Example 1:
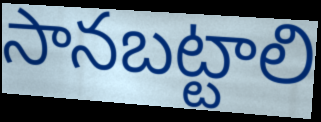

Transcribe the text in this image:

సానబట్టాలి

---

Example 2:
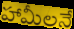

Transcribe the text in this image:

హామీలనే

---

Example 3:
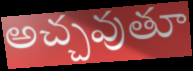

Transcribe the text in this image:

అచ్చవుతూ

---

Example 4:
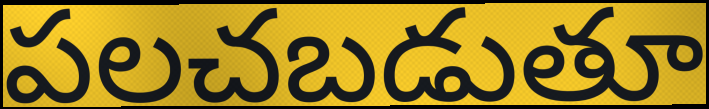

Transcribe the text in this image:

పలచబడుతూ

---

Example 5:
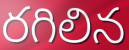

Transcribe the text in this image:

రగిలిన